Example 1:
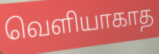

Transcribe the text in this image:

வெளியாகாத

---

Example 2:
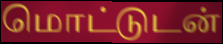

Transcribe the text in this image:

மொட்டுடன்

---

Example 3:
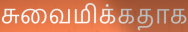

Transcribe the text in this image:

சுவைமிக்கதாக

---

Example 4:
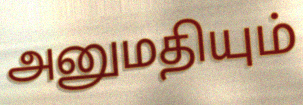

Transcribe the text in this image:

அனுமதியும்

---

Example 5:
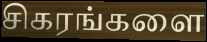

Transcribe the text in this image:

சிகரங்களை